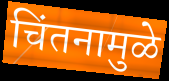
चिंतनामुळे